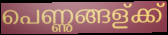
പെണ്ണുങ്ങള്ക്ക്